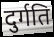
दुर्गति